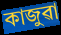
কাজুৱা